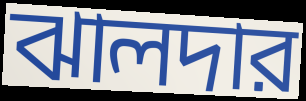
ঝালদার